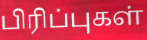
பிரிப்புகள்